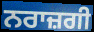
ਨਰਾਜ਼ਗੀ